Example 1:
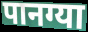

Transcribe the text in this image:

पानग्या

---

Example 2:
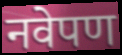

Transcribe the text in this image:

नवेपण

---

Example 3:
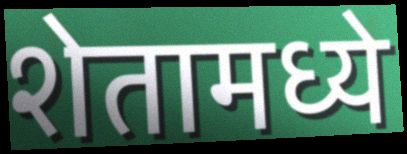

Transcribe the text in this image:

शेतामध्ये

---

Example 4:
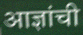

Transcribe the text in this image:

आज्ञांची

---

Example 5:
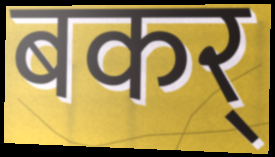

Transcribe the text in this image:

बकर्